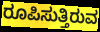
ರೂಪಿಸುತ್ತಿರುವ